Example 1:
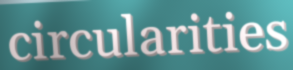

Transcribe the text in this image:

circularities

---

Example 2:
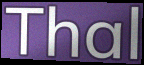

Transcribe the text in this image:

Thal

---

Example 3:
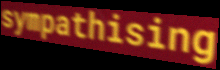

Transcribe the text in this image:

sympathising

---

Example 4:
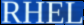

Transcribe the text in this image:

RHEL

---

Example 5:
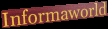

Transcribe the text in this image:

Informaworld